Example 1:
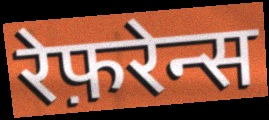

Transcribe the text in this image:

रेफ़रेन्स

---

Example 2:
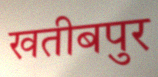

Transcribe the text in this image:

खतीबपुर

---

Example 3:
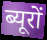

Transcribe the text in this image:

ब्यूरों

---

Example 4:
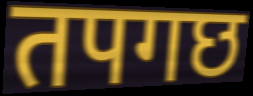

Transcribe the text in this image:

तपगछ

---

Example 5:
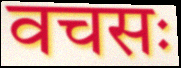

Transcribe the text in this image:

वचसः